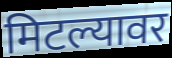
मिटल्यावर